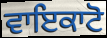
ਵਾਇਕਾਟੋ